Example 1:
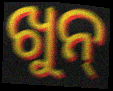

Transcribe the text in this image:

ଖୁନ୍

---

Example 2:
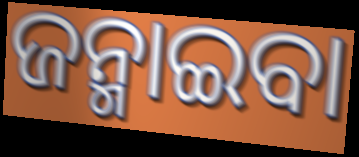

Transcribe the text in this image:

ଜନ୍ମାଇବା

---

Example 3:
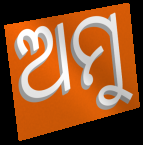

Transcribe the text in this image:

ଅମୁ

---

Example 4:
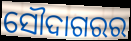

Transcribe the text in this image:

ସୌଦାଗରର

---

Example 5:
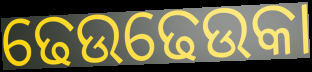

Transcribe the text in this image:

ଢେଉଢେଉକା